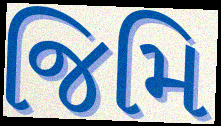
જિમિ